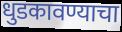
धुडकावण्याचा